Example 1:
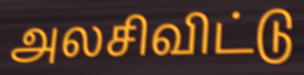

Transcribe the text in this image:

அலசிவிட்டு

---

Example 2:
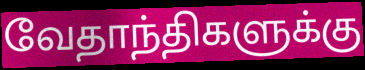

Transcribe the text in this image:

வேதாந்திகளுக்கு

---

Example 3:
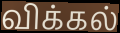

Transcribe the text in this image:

விக்கல்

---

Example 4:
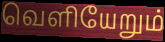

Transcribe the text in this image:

வெளியேறும்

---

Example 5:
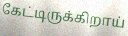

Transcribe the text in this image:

கேட்டிருக்கிறாய்